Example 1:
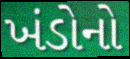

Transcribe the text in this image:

ખંડોનો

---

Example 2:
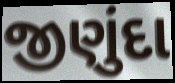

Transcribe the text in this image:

જીણુંદા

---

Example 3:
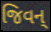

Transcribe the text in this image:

જિવન્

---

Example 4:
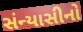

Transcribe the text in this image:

સંન્યાસીનો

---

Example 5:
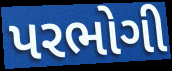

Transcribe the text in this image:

પરભોગી